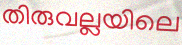
തിരുവല്ലയിലെ